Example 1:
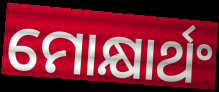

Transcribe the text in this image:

ମୋକ୍ଷାର୍ଥଂ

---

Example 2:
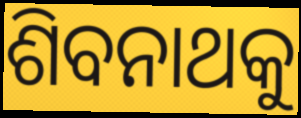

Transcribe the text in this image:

ଶିବନାଥକୁ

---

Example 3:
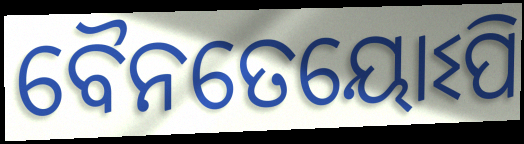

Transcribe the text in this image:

ବୈନତେୟୋଽପି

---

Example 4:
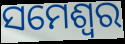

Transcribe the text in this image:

ସମେଶ୍ୱର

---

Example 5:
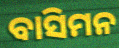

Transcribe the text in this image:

ବାସିମନ